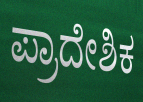
ಪ್ರಾದೇಶಿಕ